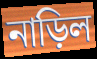
নাড়িল